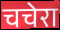
चचेरा